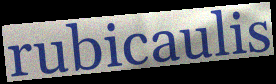
rubicaulis